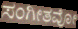
ಸಂಗೀತವೋ